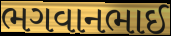
ભગવાનભાઈ